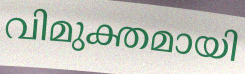
വിമുക്തമായി